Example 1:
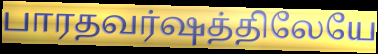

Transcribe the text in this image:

பாரதவர்ஷத்திலேயே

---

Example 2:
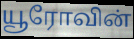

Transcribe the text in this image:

யூரோவின்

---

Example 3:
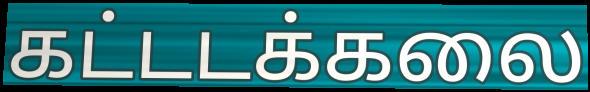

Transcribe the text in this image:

கட்டடக்கலை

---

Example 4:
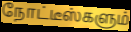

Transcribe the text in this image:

நோட்டீஸ்களும்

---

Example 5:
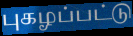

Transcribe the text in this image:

புகழப்பட்டு